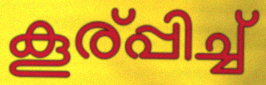
കൂര്പ്പിച്ച്